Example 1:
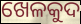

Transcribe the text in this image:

ଖେଳକୁଦ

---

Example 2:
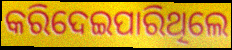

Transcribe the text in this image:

କରିଦେଇପାରିଥିଲେ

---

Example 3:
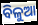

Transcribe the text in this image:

ବିଳୁଆ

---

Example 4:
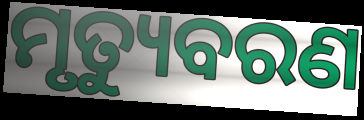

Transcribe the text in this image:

ମୃତ୍ୟୁବରଣ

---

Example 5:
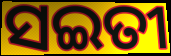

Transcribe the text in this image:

ସଇତୀ